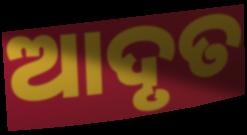
ଆଦୃତ